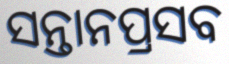
ସନ୍ତାନପ୍ରସବ